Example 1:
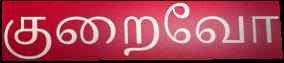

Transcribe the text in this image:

குறைவோ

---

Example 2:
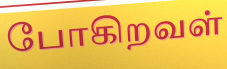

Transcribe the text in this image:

போகிறவள்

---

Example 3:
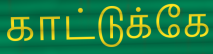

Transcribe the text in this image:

காட்டுக்கே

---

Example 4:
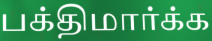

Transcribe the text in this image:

பக்திமார்க்க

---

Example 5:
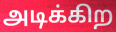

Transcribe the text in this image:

அடிக்கிற